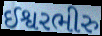
ઈશ્વરભીરુ